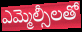
ఎమ్మెల్సీలతో